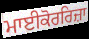
ਮਾਈਕੋਰਰਿਜ਼ਾ